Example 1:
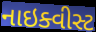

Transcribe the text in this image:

નાઇક્વીસ્ટ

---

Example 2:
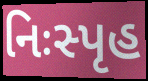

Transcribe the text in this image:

નિઃસ્પૃહ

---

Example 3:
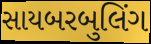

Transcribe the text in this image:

સાયબરબુલિંગ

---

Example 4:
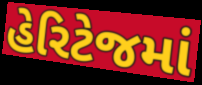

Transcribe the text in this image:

હેરિટેજમાં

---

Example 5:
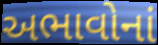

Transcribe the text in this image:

અભાવોનાં